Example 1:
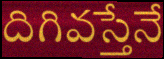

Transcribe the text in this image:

దిగివస్తేనే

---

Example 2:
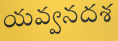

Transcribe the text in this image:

యవ్వనదశ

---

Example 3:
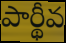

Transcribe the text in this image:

పార్థీవ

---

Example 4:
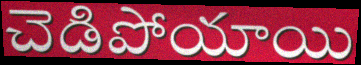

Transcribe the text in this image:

చెడిపోయాయి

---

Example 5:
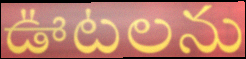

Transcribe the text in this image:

ఊటలను